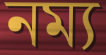
নম্য